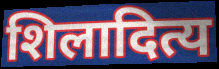
शिलादित्य